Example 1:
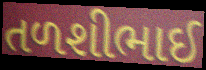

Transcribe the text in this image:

તળશીભાઈ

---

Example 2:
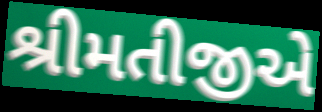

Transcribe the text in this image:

શ્રીમતીજીએ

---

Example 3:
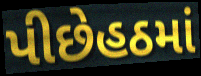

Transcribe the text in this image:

પીછેહઠમાં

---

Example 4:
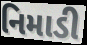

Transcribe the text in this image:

નિમાડી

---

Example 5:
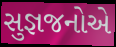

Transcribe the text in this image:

સુજ્ઞજનોએ